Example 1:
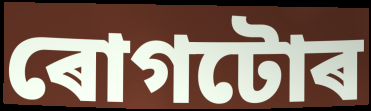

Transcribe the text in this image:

ৰোগটোৰ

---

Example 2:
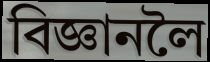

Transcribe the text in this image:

বিজ্ঞানলৈ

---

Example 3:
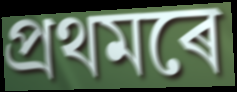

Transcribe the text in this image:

প্ৰথমৰে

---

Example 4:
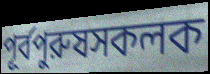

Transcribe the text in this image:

পূৰ্বপুৰুষসকলক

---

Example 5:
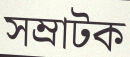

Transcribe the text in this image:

সম্ৰাটক